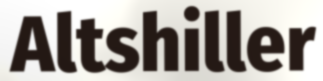
Altshiller